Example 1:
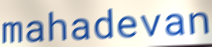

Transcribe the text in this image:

mahadevan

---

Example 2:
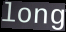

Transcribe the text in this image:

long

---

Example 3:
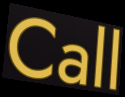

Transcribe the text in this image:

Call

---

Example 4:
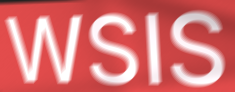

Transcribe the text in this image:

WSIS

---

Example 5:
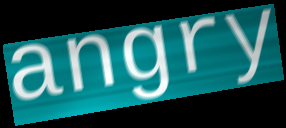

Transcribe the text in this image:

angry